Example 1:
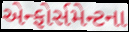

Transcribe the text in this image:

એન્ફોર્સમેન્ટના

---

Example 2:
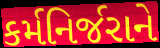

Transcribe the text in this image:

કર્મનિર્જરાને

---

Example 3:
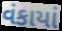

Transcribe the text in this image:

વંકાયાં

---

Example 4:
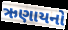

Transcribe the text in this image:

ઋણાયનો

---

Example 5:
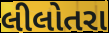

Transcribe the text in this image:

લીલોતરા